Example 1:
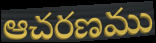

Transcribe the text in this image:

ఆచరణము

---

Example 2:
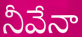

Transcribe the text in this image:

నీవేనా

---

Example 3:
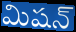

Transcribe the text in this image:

మిషన్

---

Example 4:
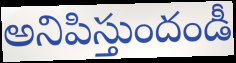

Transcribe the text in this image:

అనిపిస్తుందండీ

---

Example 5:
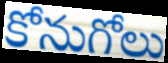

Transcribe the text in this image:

కోనుగోలు